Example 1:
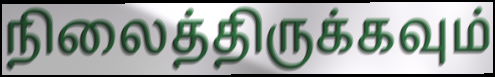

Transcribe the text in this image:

நிலைத்திருக்கவும்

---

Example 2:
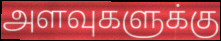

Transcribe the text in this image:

அளவுகளுக்கு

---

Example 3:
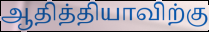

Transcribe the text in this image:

ஆதித்தியாவிற்கு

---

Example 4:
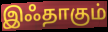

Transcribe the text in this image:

இஃதாகும்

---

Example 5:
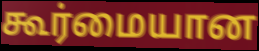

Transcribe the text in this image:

கூர்மையான